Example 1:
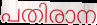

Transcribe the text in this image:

പതിരാന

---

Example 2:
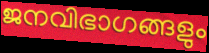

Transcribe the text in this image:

ജനവിഭാഗങ്ങളും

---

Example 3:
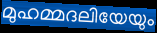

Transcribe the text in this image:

മുഹമ്മദലിയേയും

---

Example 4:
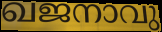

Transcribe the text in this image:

ഖജനാവു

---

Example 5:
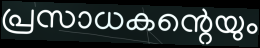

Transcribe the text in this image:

പ്രസാധകന്റെയും